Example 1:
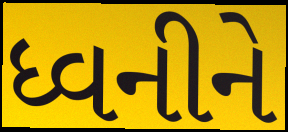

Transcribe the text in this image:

ધ્વનીને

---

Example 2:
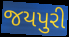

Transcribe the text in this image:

જયપુરી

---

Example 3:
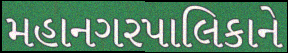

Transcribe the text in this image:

મહાનગરપાલિકાને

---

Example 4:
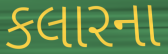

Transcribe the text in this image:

કલારના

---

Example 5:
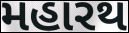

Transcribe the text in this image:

મહારથ